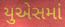
યુએસમાં